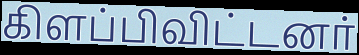
கிளப்பிவிட்டனர்